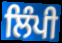
ਲਿੰਪੀ